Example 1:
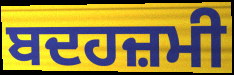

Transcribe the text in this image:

ਬਦਹਜ਼ਮੀ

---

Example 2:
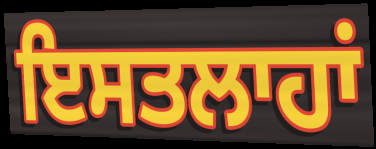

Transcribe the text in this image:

ਇਸਤਲਾਹਾਂ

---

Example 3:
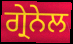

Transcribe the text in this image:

ਗ੍ਰੇਨੇਲ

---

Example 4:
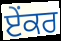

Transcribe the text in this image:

ਏੰਕਰ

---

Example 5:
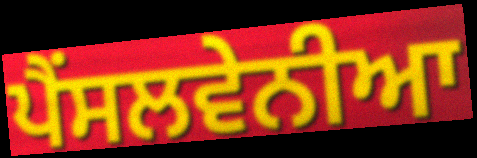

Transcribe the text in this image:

ਪੈਂਸਲਵੇਨੀਆ